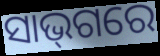
ସାଭ୍‌ଗରେ